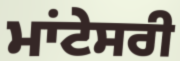
ਮਾਂਟੇਸਰੀ